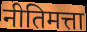
नीतिमत्ता